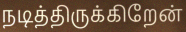
நடித்திருக்கிறேன்